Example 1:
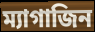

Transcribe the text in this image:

ম্যাগাজিন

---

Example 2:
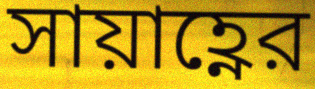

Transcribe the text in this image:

সায়াহ্ণের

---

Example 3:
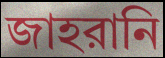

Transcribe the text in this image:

জাহরানি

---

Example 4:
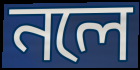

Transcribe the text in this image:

নলে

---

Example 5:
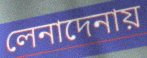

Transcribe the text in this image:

লেনাদেনায়